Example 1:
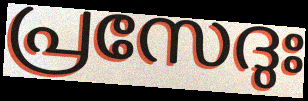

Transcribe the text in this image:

പ്രസേദുഃ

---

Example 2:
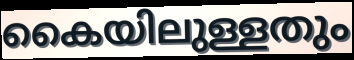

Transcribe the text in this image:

കൈയിലുള്ളതും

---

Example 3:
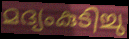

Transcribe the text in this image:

മദ്യംകുടിച്ചു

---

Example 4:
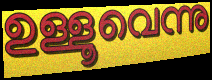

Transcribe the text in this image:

ഉള്ളൂവെന്നു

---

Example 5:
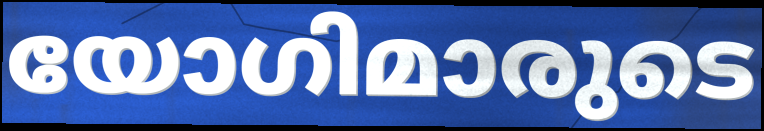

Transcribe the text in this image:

യോഗിമാരുടെ